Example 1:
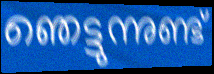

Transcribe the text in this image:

ഞെട്ടുന്നുണ്ട്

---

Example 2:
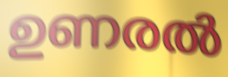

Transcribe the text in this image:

ഉണരൽ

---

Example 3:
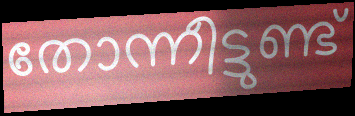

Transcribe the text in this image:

തോന്നീട്ടുണ്ട്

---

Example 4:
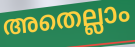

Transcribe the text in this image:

അതെല്ലാം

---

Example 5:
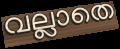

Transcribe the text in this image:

വല്ലാതെ